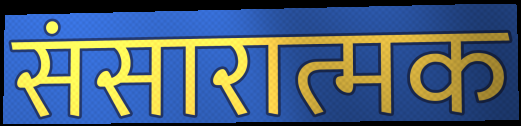
संसारात्मक